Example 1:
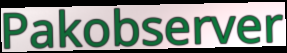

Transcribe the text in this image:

Pakobserver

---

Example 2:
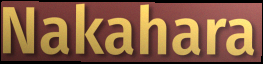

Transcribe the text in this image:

Nakahara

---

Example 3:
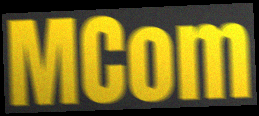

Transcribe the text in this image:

MCom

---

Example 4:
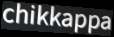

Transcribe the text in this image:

chikkappa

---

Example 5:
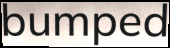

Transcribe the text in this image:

bumped